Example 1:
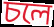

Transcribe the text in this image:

চলে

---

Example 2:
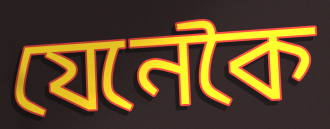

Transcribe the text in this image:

যেনেকৈ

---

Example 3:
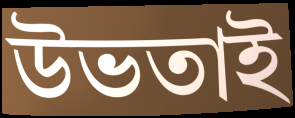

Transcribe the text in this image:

উভতাই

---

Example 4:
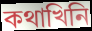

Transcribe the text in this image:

কথাখিনি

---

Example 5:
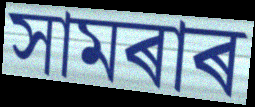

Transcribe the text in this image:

সামৰাৰ